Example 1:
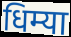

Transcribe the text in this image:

धिम्या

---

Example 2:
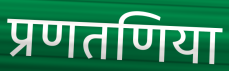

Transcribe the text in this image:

प्रणतणिया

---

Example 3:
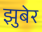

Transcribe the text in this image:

झुबेर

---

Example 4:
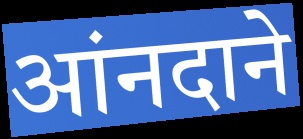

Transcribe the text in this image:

आंनदाने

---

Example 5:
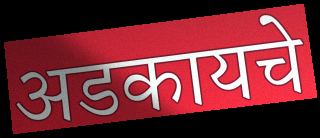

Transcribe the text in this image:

अडकायचे